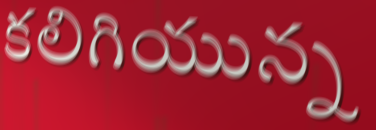
కలిగియున్న